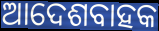
ଆଦେଶବାହକ